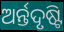
ଅର୍ନ୍ତଦୃଷ୍ଟି